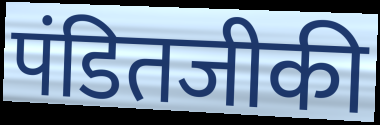
पंडितजीकी